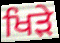
ਖਿੜੇ